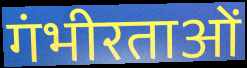
गंभीरताओं